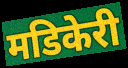
मडिकेरी